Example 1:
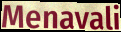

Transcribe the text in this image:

Menavali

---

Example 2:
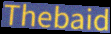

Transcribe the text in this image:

Thebaid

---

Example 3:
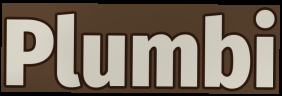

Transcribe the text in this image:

Plumbi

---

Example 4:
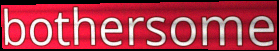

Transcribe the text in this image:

bothersome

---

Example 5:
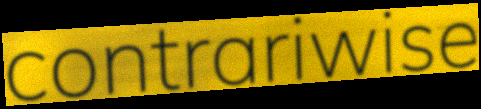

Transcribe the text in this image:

contrariwise